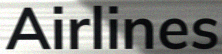
Airlines